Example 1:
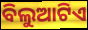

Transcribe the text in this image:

ବିଲୁଆଟିଏ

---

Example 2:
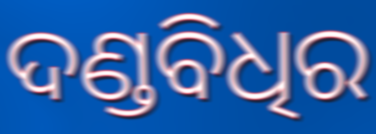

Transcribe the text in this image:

ଦଣ୍ଡବିଧିର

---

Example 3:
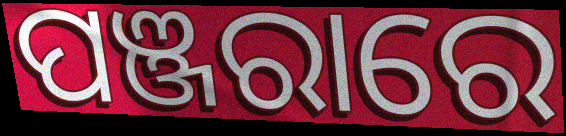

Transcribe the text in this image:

ପଞ୍ଜରାରେ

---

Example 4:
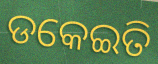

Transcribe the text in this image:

ଡକେଇତି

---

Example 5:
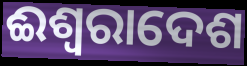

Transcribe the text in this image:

ଈଶ୍ୱରାଦେଶ